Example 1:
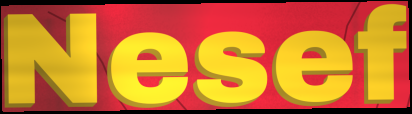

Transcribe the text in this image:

Nesef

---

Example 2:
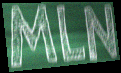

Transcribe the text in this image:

MLN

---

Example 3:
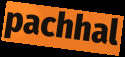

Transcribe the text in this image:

pachhal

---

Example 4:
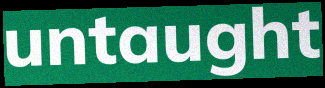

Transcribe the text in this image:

untaught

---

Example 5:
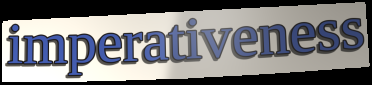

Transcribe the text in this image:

imperativeness